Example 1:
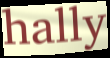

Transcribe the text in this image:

hally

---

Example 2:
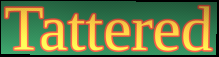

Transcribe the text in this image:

Tattered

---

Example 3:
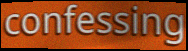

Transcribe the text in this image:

confessing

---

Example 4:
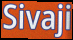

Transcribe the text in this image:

Sivaji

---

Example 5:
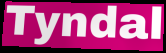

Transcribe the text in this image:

Tyndal